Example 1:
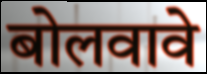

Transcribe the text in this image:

बोलवावे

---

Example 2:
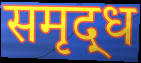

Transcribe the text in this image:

समृद्ध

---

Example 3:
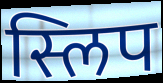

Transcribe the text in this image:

स्लिप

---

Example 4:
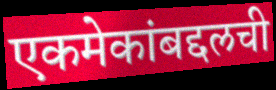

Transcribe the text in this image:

एकमेकांबद्दलची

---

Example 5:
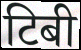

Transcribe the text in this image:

टिबी